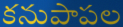
కనుపాపల